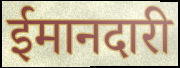
ईमानदारी